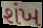
શંખ